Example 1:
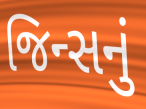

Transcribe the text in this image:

જિન્સનું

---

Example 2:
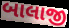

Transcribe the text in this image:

બાલાજી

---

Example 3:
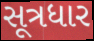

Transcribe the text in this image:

સૂત્રધાર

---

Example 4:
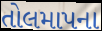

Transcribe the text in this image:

તોલમાપના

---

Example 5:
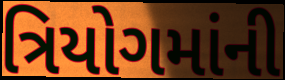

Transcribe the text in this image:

ત્રિયોગમાંની